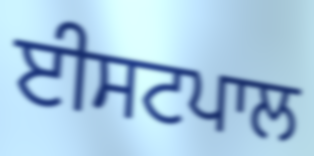
ਈਸਟਪਾਲ